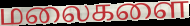
மலைகளை